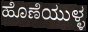
ಹೊಣೆಯುಳ್ಳ